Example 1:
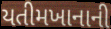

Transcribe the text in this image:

યતીમખાનાની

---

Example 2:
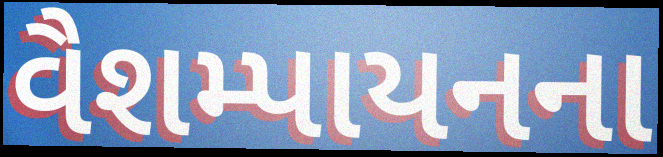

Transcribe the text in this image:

વૈશમ્પાયનના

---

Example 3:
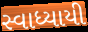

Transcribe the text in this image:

સ્વાધ્યાયી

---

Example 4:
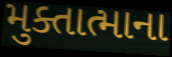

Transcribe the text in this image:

મુક્તાત્માના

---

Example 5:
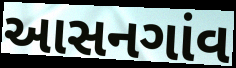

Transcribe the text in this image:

આસનગાંવ